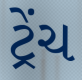
ટ્રેંચ